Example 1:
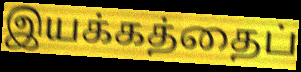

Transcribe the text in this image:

இயக்கத்தைப்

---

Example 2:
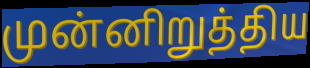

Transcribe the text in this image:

முன்னிறுத்திய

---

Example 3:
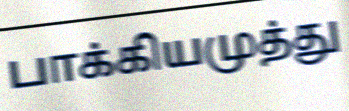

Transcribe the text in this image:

பாக்கியமுத்து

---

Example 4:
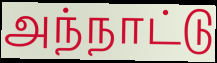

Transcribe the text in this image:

அந்நாட்டு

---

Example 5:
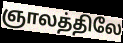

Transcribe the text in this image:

ஞாலத்திலே